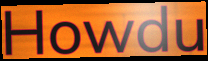
Howdu